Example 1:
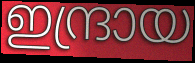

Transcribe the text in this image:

ഇന്ദ്രായ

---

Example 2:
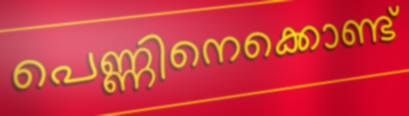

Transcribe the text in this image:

പെണ്ണിനെക്കൊണ്ട്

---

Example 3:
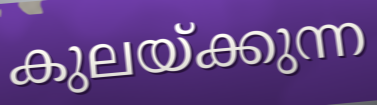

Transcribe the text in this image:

കുലയ്ക്കുന്ന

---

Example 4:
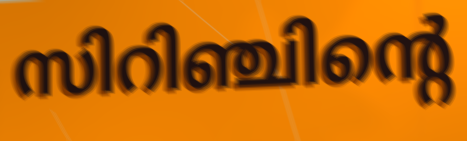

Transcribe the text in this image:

സിറിഞ്ചിന്റെ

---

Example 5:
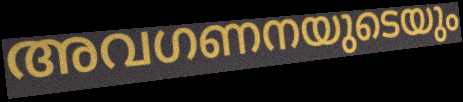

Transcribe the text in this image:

അവഗണനയുടെയും